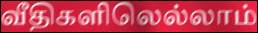
வீதிகளிலெல்லாம்